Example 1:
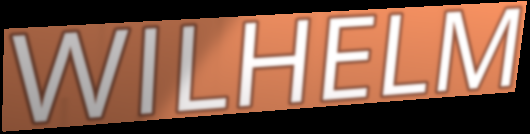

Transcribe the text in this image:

WILHELM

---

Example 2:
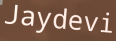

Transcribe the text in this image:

Jaydevi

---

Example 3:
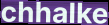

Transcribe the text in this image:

chhalke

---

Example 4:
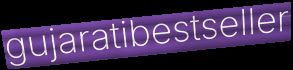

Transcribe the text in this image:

gujaratibestseller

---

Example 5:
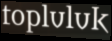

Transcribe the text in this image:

topluluk